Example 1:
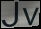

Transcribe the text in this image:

Jv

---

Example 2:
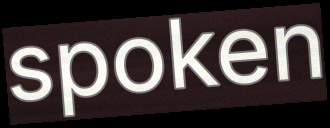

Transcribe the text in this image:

spoken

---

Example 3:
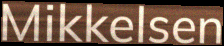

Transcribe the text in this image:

Mikkelsen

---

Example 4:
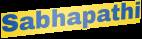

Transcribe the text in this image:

Sabhapathi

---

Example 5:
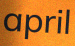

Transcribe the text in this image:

april